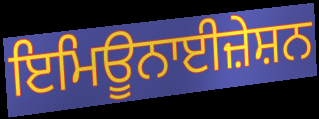
ਇਮਿਊਨਾਈਜ਼ੇਸ਼ਨ